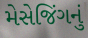
મેસેજિંગનું